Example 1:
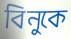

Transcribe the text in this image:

বিনুকে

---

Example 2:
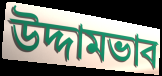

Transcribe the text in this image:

উদ্দামভাব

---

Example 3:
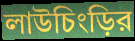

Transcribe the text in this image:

লাউচিংড়ির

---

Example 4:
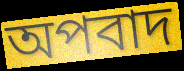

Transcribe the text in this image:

অপবাদ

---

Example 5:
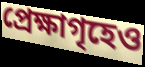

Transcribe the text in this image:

প্রেক্ষাগৃহেও